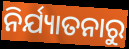
ନିର୍ଯ୍ୟାତନାରୁ